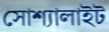
সোশ্যালাইট